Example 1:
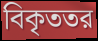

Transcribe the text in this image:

বিকৃততর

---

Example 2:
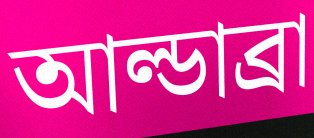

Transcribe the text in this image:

আল্ডাব্রা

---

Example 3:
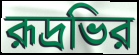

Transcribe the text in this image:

রূদ্রভির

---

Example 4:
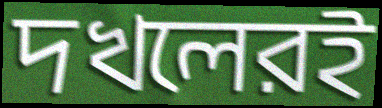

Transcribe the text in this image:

দখলেরই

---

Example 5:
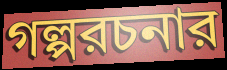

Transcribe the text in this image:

গল্পরচনার